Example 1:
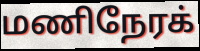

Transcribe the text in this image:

மணிநேரக்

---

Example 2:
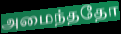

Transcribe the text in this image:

அமைந்ததோ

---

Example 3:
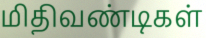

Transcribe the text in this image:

மிதிவண்டிகள்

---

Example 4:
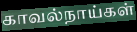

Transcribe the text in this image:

காவல்நாய்கள்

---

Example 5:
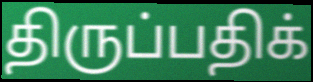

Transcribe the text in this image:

திருப்பதிக்